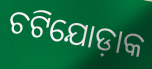
ଚଟିଯୋଡ଼ାକ